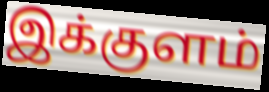
இக்குளம்